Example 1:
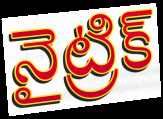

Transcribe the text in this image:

నైట్రిక్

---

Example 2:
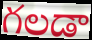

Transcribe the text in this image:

గలడా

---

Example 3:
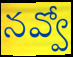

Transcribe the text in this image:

నవ్వో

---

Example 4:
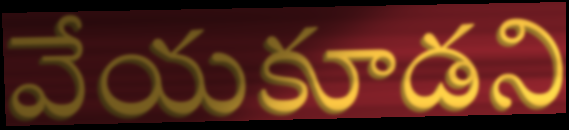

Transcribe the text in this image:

వేయకూడని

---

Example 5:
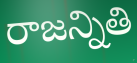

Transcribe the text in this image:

రాజన్నితి